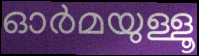
ഓർമയുള്ളൂ